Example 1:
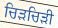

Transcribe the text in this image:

ਚਿੜਚਿੜੀ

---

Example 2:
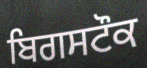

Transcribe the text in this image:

ਬਿਗਸਟੌਕ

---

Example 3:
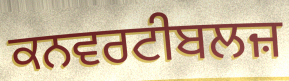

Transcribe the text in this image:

ਕਨਵਰਟੀਬਲਜ਼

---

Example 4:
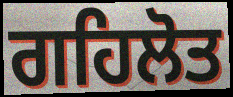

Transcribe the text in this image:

ਗਹਿਲੋਤ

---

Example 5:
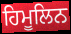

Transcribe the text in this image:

ਹਿਮੂਲਿਨ